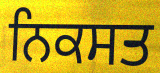
ਨਿਕਸਤ